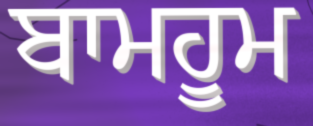
ਬਾਮਹੂਮ